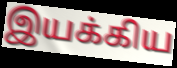
இயக்கிய